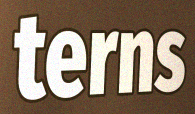
terns